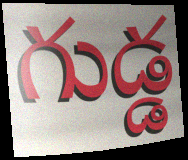
గుడ్డ